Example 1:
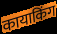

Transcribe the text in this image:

कायाकिंग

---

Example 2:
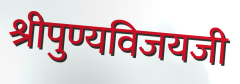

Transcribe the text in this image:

श्रीपुण्यविजयजी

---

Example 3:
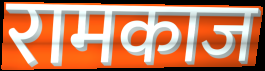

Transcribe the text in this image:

रामकाज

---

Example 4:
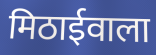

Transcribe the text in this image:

मिठाईवाला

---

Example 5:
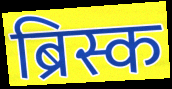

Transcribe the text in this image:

ब्रिस्क